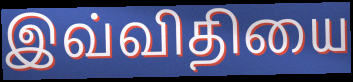
இவ்விதியை